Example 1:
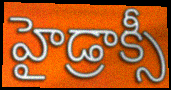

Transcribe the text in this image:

హైడ్రాక్సీ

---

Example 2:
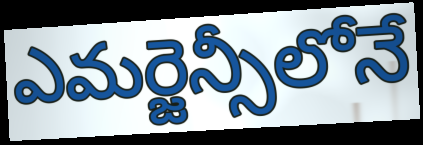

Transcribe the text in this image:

ఎమర్జెన్సీలోనే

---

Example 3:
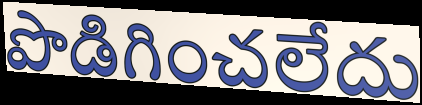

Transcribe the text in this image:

పొడిగించలేదు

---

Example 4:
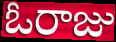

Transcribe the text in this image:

ఓరాజు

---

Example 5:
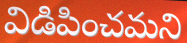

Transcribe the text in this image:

విడిపించమని